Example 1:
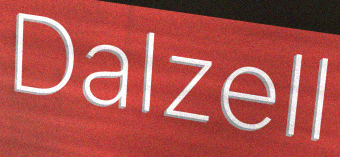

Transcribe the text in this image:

Dalzell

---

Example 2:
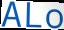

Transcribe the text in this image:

ALo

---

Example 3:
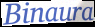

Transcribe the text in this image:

Binaura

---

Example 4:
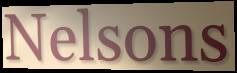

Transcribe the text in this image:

Nelsons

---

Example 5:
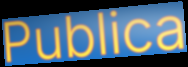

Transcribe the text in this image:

Publica